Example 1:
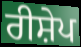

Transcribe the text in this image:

ਰੀਸ਼ੇਪ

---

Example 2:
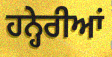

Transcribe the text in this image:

ਹਨ੍ਹੇਰੀਆਂ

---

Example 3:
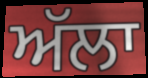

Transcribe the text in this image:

ਅੱਲਾ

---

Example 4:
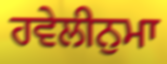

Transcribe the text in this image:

ਹਵੇਲੀਨੁਮਾ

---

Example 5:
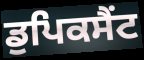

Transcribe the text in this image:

ਡੁਪਿਕਸੈਂਟ